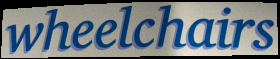
wheelchairs